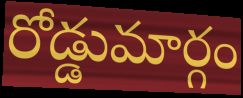
రోడ్డుమార్గం